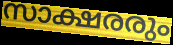
സാക്ഷരരും